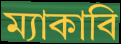
ম্যাকাবি